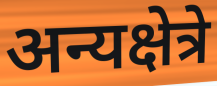
अन्यक्षेत्रे